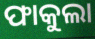
ଫାକୁଲା